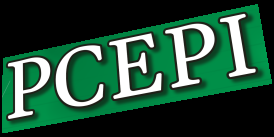
PCEPI